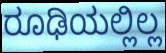
ರೂಢಿಯಲ್ಲಿಲ್ಲ